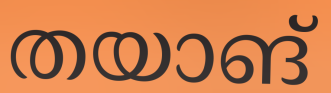
തയാങ്